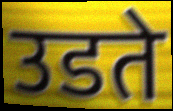
उडते